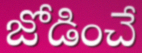
జోడించే